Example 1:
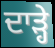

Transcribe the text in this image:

ਦਾੜ੍ਹੇ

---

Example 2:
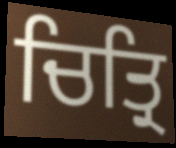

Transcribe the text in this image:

ਚਿਤ੍ਰਿ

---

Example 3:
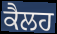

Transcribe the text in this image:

ਕੈਲਹ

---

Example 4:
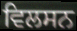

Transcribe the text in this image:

ਵਿਲਸਨ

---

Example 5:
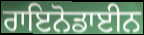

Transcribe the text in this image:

ਰਾਇਨੋਡਾਈਨ